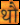
थौ